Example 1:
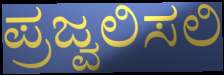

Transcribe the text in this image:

ಪ್ರಜ್ವಲಿಸಲಿ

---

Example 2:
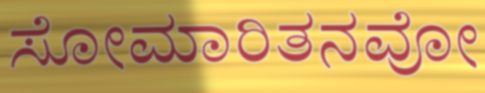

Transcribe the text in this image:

ಸೋಮಾರಿತನವೋ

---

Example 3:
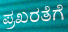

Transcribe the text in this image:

ಪ್ರಖರತೆಗೆ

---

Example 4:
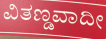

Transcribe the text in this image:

ವಿತಣ್ಡವಾದೀ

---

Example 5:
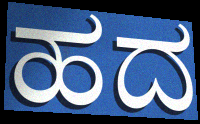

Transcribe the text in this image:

ಹದ